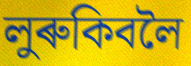
লুৰুকিবলৈ